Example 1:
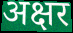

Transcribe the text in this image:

अक्षर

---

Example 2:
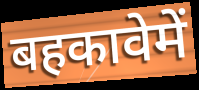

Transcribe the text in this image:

बहकावेमें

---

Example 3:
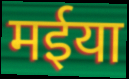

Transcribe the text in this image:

मईया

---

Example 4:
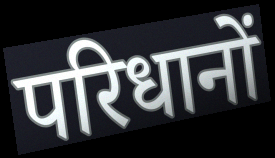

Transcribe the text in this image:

परिधानों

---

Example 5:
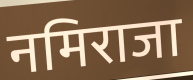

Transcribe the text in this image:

नमिराजा